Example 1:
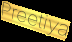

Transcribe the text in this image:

Preetiya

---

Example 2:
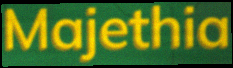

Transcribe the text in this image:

Majethia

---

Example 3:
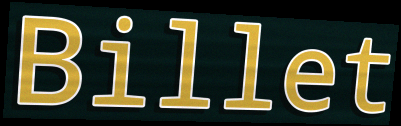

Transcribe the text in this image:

Billet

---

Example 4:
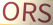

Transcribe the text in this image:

ORS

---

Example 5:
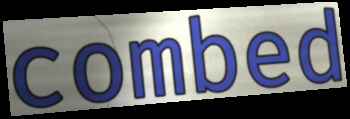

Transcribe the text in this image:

combed